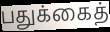
பதுக்கைத்